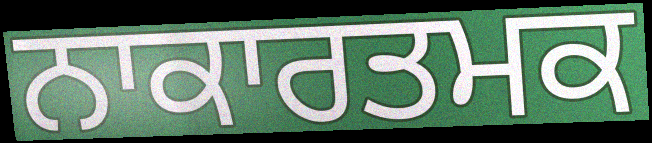
ਨਾਕਾਰਤਮਕ